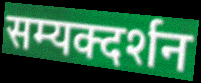
सम्यक्दर्शन